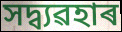
সদ্ব্যৱহাৰ